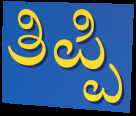
ತಿಪ್ಪಿ